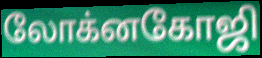
லோக்னகோஜி